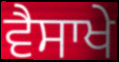
ਵੈਸਾਖੇ